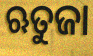
ଋତୁଜା